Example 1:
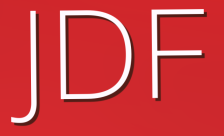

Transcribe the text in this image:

JDF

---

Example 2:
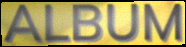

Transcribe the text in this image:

ALBUM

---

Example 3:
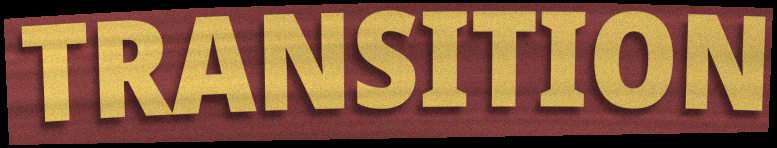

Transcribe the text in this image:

TRANSITION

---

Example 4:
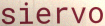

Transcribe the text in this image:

siervo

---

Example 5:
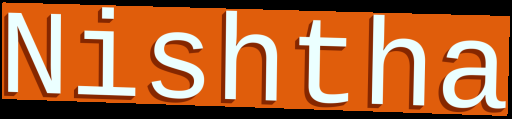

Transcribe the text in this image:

Nishtha